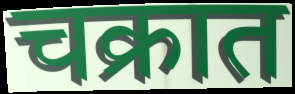
चक्रात